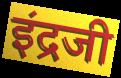
इंद्रजी